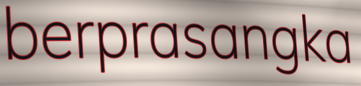
berprasangka